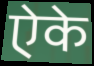
ऐके